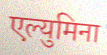
एल्युमिना